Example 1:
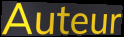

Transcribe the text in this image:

Auteur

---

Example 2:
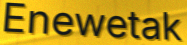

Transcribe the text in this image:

Enewetak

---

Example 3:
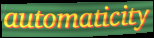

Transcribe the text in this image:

automaticity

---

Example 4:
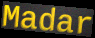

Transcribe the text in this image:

Madar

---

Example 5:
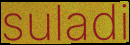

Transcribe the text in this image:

suladi